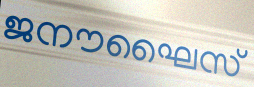
ജനൗഘൈസ്